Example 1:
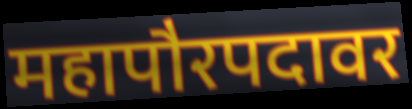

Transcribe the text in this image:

महापौरपदावर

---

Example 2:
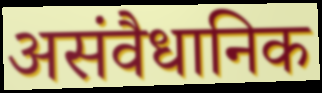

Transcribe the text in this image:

असंवैधानिक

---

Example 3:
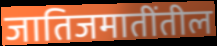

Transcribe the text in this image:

जातिजमातींतील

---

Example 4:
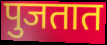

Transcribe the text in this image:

पुजतात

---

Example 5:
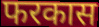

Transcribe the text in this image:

फरकास